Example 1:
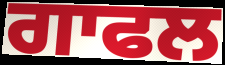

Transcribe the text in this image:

ਗਾਫਲ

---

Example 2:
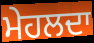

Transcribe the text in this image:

ਮੇਹਲਦਾ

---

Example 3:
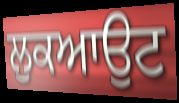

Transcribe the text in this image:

ਲੁਕਆਉਟ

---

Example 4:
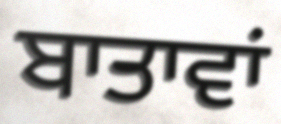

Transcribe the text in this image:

ਬਾਤਾਵਾਂ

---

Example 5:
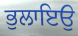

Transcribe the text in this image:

ਭੁਲਾਇਉ